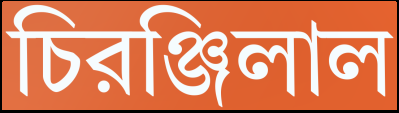
চিরঞ্জিলাল